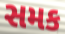
સમક